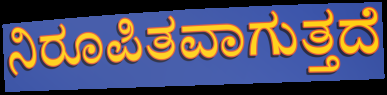
ನಿರೂಪಿತವಾಗುತ್ತದೆ